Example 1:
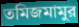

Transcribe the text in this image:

তমিজমামুর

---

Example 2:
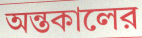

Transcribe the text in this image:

অন্তকালের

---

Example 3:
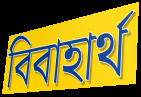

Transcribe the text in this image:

বিবাহার্থ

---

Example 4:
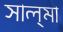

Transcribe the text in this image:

সাল্‌মা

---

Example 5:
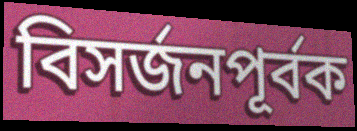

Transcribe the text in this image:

বিসর্জনপূর্বক